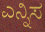
ಎನ್ನಿಸ